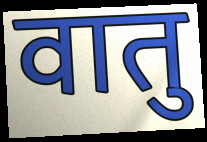
वातु